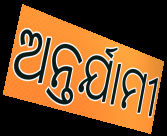
ଅନ୍ତର୍ଯାମୀ